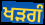
ਖੜਗੰ